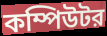
কম্পিউটর